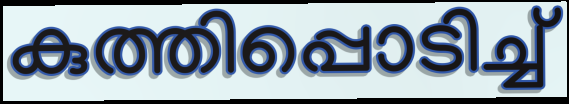
കുത്തിപ്പൊടിച്ച്